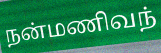
நன்மணிவந்